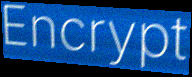
Encrypt